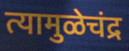
त्यामुळेचंद्र